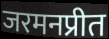
जरमनप्रीत